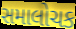
સમાલોચક